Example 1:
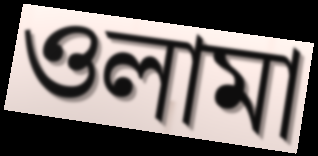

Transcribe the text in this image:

ওলামা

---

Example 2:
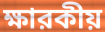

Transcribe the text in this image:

ক্ষারকীয়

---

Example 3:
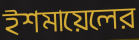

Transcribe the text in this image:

ইশমায়েলের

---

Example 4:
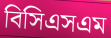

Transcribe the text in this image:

বিসিএসএম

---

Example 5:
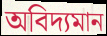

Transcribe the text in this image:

অবিদ্যমান